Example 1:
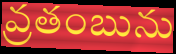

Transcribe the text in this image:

వ్రతంబును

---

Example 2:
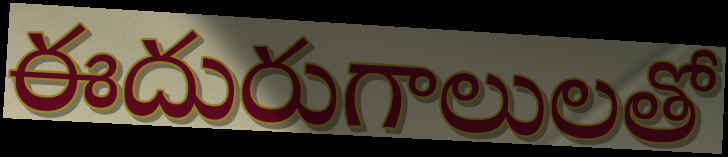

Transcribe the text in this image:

ఈదురుగాలులతో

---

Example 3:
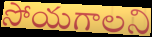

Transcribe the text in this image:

సోయగాలని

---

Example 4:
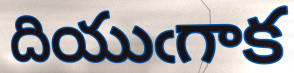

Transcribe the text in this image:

దియుఁగాక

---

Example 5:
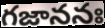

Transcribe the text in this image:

గజాననః